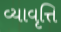
વ્યાવૃત્તિ